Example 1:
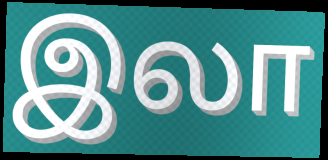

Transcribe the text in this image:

இலா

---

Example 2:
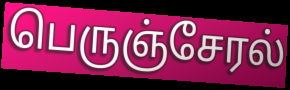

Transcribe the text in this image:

பெருஞ்சேரல்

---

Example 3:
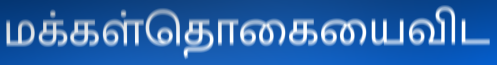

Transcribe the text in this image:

மக்கள்தொகையைவிட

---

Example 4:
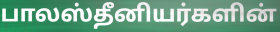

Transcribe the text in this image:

பாலஸ்தீனியர்களின்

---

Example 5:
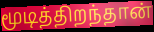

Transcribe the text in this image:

மூடித்திறந்தான்